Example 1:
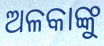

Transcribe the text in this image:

ଅଳକାଙ୍କୁ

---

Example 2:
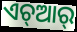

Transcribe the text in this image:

ଏଚ୍ଆର୍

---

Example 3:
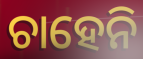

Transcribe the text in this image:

ଚାହେନି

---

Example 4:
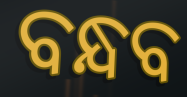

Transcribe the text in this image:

ବନ୍ଧବ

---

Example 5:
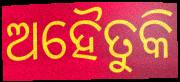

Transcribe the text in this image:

ଅହୈତୁକି